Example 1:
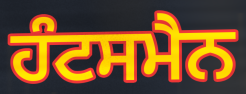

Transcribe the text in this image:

ਹੰਟਸਮੈਨ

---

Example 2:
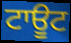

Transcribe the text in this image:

ਟਾਊਟ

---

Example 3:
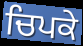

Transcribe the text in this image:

ਚਿਪਕੇ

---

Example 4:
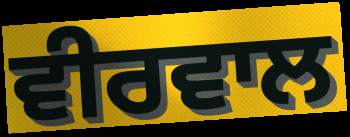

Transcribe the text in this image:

ਵੀਰਵਾਲ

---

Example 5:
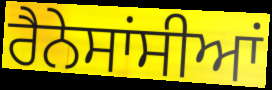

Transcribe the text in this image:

ਰੈਨੇਸਾਂਸੀਆਂ